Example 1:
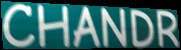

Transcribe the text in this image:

CHANDR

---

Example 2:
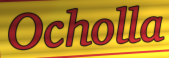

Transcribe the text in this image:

Ocholla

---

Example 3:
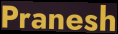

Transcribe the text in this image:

Pranesh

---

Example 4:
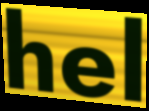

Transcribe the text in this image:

hel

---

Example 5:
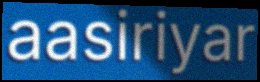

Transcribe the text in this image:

aasiriyar